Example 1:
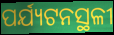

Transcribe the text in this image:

ପର୍ଯ୍ୟଟନସ୍ଥଳୀ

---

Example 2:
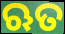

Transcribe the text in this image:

ଋତ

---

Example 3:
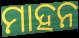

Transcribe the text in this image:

ମାହନ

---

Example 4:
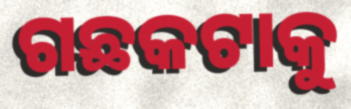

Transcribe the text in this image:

ଗଛକଟାକୁ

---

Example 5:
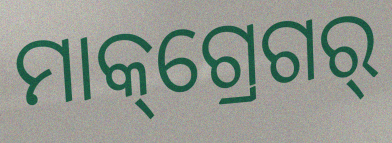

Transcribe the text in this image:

ମାକ୍‌ଗ୍ରେଗର୍